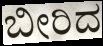
ಬೀರಿದ